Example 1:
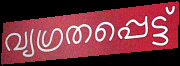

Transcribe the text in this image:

വ്യഗ്രതപ്പെട്ട്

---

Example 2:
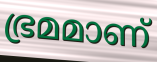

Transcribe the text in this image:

ഭ്രമമാണ്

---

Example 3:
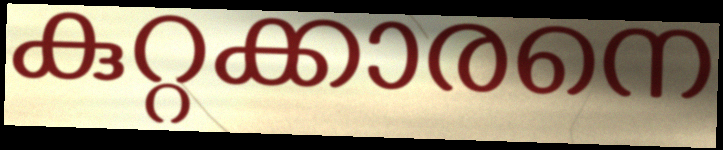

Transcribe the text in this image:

കുറ്റക്കാരനെ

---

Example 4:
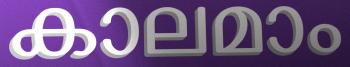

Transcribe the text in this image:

കാലമാം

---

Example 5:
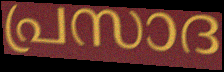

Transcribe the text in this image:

പ്രസാദ